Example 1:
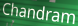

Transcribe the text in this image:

Chandram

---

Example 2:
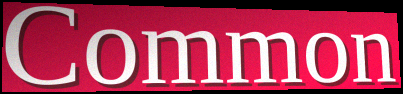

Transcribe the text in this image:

Common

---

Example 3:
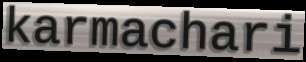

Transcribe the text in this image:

karmachari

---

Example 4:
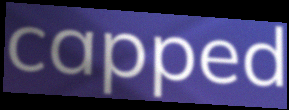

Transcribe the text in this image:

capped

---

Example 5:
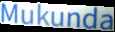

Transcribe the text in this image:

Mukunda